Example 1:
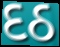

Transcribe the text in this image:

દઠ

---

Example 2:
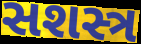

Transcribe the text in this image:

સશસ્ત્ર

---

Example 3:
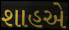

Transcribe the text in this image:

શાહએ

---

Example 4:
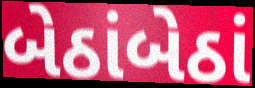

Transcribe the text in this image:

બેઠાંબેઠાં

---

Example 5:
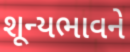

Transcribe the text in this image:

શૂન્યભાવને